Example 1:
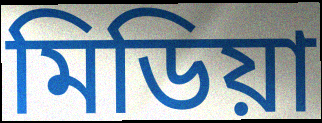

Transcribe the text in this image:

মিডিয়া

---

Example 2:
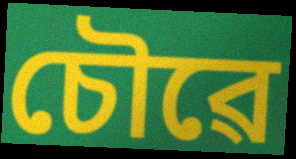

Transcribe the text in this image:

চৌৱে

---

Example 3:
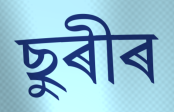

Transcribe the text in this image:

ছুৰীৰ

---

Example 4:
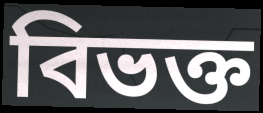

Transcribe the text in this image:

বিভক্ত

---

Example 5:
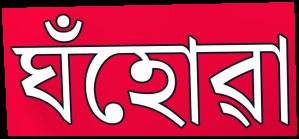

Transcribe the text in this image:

ঘঁহোৱা